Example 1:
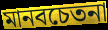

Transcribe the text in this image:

মানবচেতনা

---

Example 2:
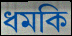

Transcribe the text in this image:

ধমকি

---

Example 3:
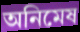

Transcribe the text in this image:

অনিমেষ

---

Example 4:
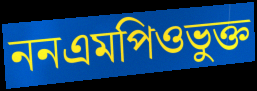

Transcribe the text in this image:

ননএমপিওভুক্ত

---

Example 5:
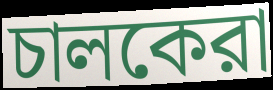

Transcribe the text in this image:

চালকেরা